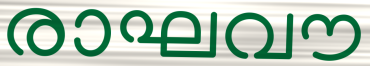
രാഘവൗ